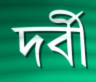
দর্বী